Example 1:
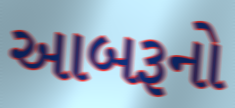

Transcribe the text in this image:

આબરૂનો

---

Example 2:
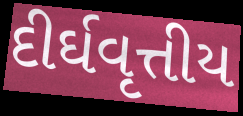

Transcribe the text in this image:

દીર્ઘવૃત્તીય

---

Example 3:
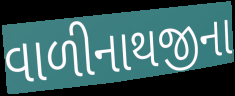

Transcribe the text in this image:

વાળીનાથજીના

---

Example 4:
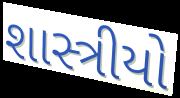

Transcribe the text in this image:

શાસ્ત્રીયો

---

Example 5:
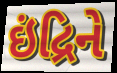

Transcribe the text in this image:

ઇંદ્રિને